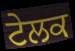
ਟੇਲਕ